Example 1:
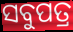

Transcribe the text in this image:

ସବୁପତ୍ର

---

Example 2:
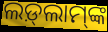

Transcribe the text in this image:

ଲଡ଼୍‍ଲାମ୍‍ଙ୍କ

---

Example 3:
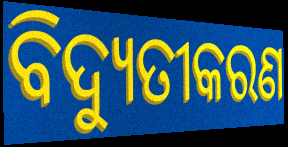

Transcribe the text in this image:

ବିଦ୍ୟୁତୀକରଣ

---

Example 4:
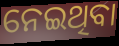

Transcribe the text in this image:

ନେଇଥିବା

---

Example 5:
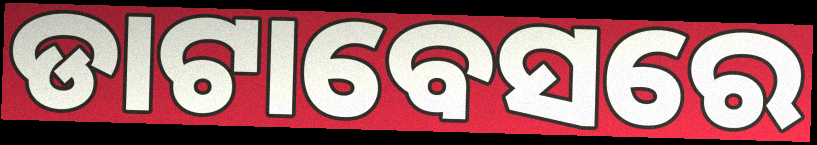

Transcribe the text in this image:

ଡାଟାବେସରେ